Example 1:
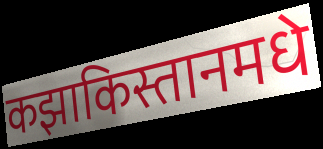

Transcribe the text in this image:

कझाकिस्तानमधे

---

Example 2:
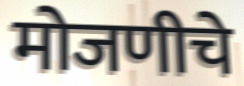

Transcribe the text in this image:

मोजणीचे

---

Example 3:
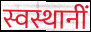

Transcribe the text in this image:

स्वस्थानीं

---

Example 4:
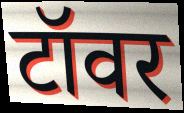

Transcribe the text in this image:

टॉवर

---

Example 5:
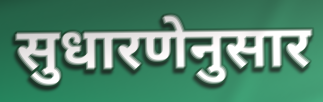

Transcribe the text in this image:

सुधारणेनुसार